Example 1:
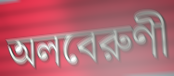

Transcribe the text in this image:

অলবেরুণী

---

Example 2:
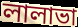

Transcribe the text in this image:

লালাভা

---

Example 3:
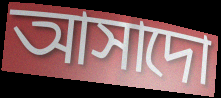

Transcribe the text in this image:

আসাদো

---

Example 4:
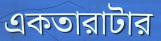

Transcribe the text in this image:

একতারাটার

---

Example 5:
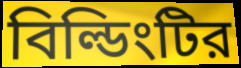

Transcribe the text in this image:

বিল্ডিংটির